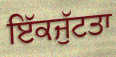
ਇੱਕਜੁੱਟਤਾ